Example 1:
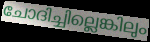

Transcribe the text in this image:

ചോദിച്ചില്ലെങ്കിലും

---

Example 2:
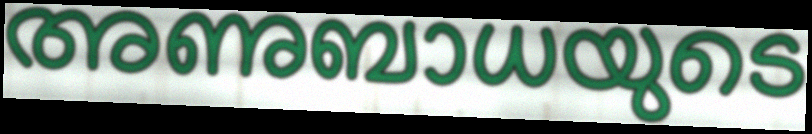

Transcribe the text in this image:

അണുബാധയുടെ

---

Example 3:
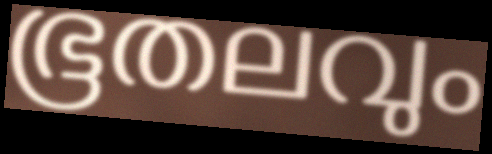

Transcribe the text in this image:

ഭൂതലവും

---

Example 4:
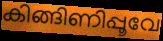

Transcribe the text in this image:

കിങ്ങിണിപ്പൂവേ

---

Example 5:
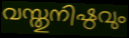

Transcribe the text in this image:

വസ്തുനിഷ്ഠവും